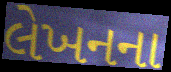
લેખનના